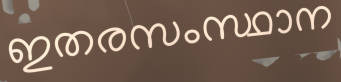
ഇതരസംസ്ഥാന